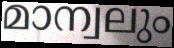
മാന്വലും